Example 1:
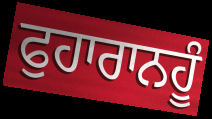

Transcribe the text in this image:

ਫੁਹਾਰਾਨਹੂੰ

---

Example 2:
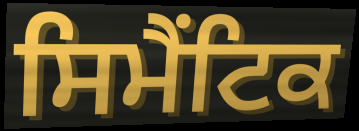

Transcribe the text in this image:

ਸਿਮੈਂਟਿਕ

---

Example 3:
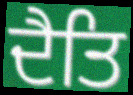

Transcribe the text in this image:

ਦੈਤਿ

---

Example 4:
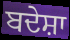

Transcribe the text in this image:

ਬਦੇਸ਼ਾ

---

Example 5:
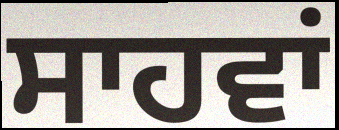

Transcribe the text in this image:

ਸਾਹਵਾਂ